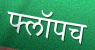
फ्लॉपच